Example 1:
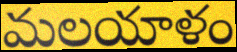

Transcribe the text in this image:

మలయాళం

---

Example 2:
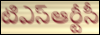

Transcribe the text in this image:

టిఎస్ఆర్టీసీ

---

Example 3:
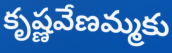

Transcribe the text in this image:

కృష్ణవేణమ్మకు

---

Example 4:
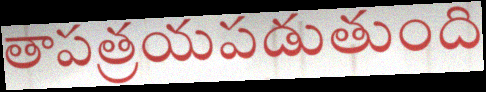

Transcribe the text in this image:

తాపత్రయపడుతుంది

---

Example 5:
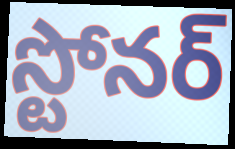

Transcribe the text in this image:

స్టోనర్